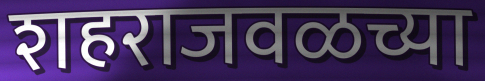
शहराजवळच्या